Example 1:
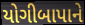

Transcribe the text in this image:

યોગીબાપાને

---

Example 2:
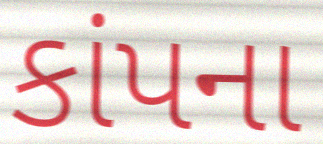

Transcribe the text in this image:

કાંપના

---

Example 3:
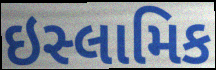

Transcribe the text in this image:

ઇસ્લામિક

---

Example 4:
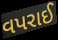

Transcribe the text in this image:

વપરાઈ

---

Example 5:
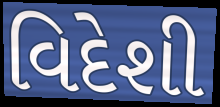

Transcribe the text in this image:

વિદેશી